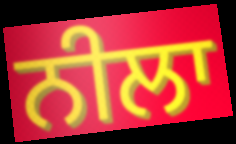
ਨੀਲਾ